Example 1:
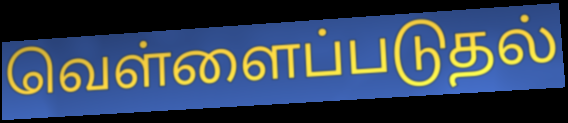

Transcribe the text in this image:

வெள்ளைப்படுதல்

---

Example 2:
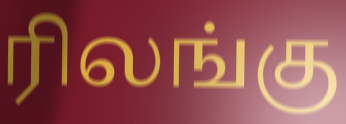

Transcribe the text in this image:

ரிலங்கு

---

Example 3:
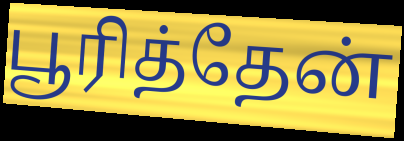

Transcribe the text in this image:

பூரித்தேன்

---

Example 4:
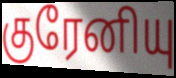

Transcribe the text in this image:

குரேனியு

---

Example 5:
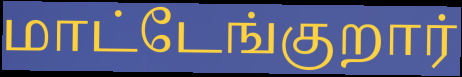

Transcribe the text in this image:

மாட்டேங்குறார்